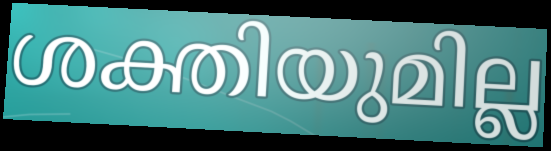
ശക്തിയുമില്ല